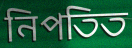
নিপতিত